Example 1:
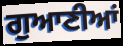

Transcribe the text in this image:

ਗੁਆਣੀਆਂ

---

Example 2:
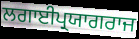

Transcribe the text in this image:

ਲਗਾਈਪ੍ਰਯਾਗਰਾਜ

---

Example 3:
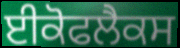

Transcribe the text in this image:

ਈਕੋਫਲੈਕਸ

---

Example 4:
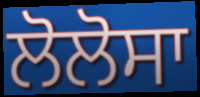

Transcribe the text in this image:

ਲੋਲੋਸਾ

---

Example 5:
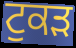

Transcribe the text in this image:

ਟੁਕੜ